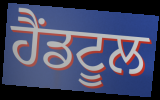
ਹੈਂਡਟੂਲ